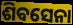
ଶିବସେନା